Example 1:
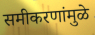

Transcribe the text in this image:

समीकरणांमुळे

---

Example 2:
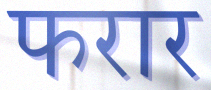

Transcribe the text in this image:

फरार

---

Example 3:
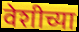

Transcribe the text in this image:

वेशीच्या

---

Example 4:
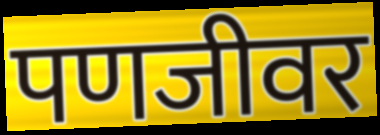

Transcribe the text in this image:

पणजीवर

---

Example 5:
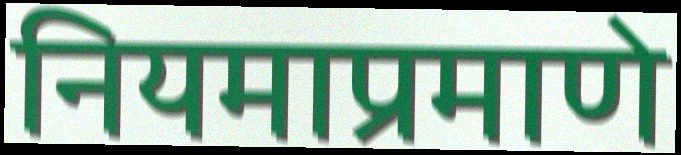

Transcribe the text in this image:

नियमाप्रमाणे